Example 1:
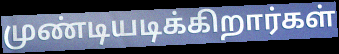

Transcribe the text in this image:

முண்டியடிக்கிறார்கள்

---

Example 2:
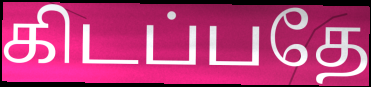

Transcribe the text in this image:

கிடப்பதே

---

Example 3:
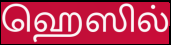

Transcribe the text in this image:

ஹெஸில்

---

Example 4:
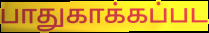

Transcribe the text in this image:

பாதுகாக்கப்பட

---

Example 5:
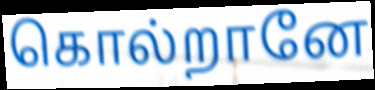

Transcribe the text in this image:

கொல்றானே